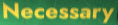
Necessary